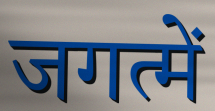
जगत्में